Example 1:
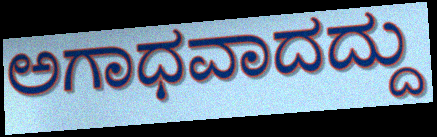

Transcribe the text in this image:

ಅಗಾಧವಾದದ್ದು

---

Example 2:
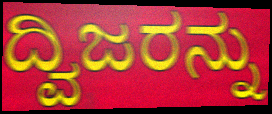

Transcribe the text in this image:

ದ್ವಿಜರನ್ನು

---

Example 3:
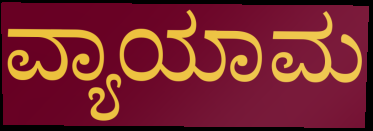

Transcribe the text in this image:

ವ್ಯಾಯಾಮ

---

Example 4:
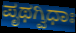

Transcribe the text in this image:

ಪೃಥಗ್ವಿಧಾಃ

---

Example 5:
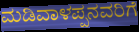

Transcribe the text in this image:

ಮಡಿವಾಳಪ್ಪನವರಿಗೆ